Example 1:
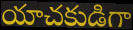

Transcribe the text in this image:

యాచకుడిగా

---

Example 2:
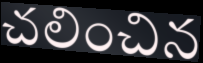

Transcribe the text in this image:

చలించిన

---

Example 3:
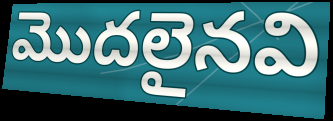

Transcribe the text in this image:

మొదలైనవి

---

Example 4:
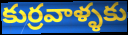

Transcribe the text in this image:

కుర్రవాళ్ళకు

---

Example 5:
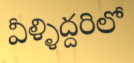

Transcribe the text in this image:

వీళ్ళిద్దరిలో